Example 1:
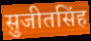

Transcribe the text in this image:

सुजीतसिंह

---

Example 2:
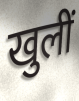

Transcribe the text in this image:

खुलीं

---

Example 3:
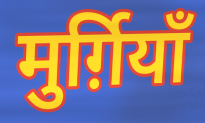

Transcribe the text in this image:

मुर्ग़ियाँ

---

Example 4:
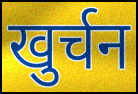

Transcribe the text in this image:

खुर्चन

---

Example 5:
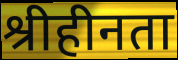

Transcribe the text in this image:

श्रीहीनता